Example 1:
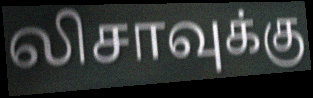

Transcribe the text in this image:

லிசாவுக்கு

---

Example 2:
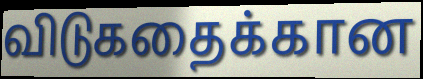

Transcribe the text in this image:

விடுகதைக்கான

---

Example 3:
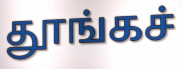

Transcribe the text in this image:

தூங்கச்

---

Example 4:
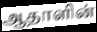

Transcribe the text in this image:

ஆதாளின்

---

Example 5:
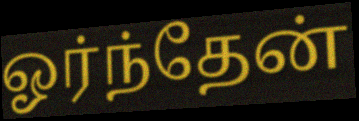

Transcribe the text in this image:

ஓர்ந்தேன்